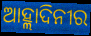
ଆହ୍ଲାଦିନୀର